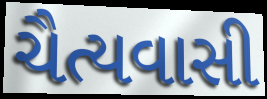
ચૈત્યવાસી